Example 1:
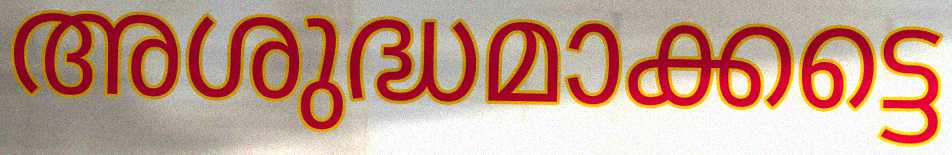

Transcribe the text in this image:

അശുദ്ധമാക്കട്ടെ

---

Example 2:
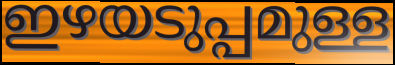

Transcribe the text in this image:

ഇഴയടുപ്പമുള്ള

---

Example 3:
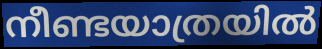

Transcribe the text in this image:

നീണ്ടയാത്രയിൽ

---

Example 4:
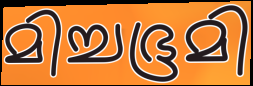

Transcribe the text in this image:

മിച്ചഭൂമി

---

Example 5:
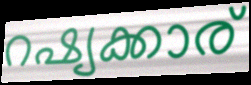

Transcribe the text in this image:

റഷ്യക്കാര്